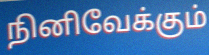
நினிவேக்கும்